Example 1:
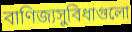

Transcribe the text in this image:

বাণিজ্যসুবিধাগুলো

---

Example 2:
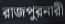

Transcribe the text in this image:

রাজপুরনারী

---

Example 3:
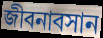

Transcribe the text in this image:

জীবনাবসান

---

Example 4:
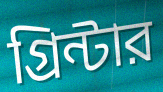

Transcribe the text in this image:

গ্রিন্টার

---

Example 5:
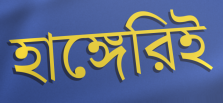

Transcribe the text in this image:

হাঙ্গেরিই